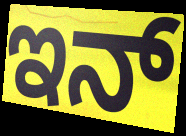
ಇನ್